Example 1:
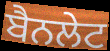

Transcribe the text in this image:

ਬੈਨਲੇਟ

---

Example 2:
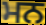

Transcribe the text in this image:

ਮਨ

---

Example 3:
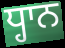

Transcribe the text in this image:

ਧ੍ਹਾਨ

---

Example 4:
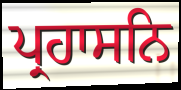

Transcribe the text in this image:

ਪ੍ਰਹਾਸਨਿ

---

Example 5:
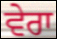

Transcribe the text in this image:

ਵੇਰਾ